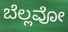
ಬೆಲ್ಲವೋ